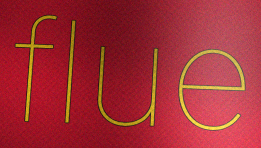
flue